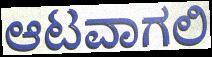
ಆಟವಾಗಲಿ